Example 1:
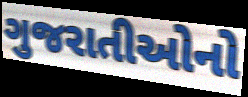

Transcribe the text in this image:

ગુજરાતીઓનો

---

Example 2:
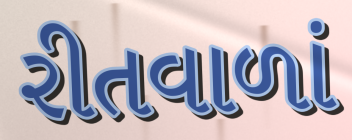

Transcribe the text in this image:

રીતવાળાં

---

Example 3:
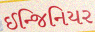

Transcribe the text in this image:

ઈન્જિનિયર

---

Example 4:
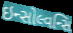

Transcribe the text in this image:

ઇન્સોલ્વન્સિ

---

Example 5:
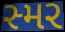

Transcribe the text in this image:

સ્મર